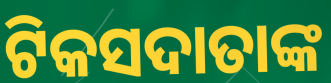
ଟିକସଦାତାଙ୍କ